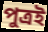
পুত্ৰই